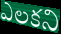
ఎలకని